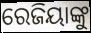
ରେଜିୟାଙ୍କୁ